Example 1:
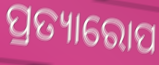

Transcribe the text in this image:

ପ୍ରତ୍ୟାରୋପ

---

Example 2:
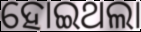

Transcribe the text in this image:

ହୋଇଥଲା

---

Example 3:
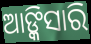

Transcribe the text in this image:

ଆଙ୍କିସାରି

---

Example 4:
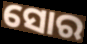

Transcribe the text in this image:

ସୋର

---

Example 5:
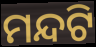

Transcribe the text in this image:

ମନ୍ଦଟି